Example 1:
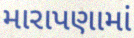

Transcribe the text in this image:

મારાપણામાં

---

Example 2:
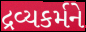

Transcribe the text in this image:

દ્રવ્યકર્મને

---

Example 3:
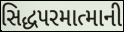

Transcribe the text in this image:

સિદ્ધપરમાત્માની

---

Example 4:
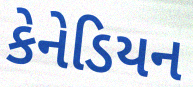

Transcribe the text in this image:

કેનેડિયન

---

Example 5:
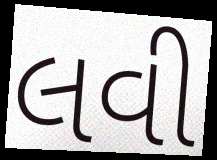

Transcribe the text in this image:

લવી